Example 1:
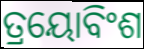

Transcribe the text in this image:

ତ୍ରୟୋବିଂଶ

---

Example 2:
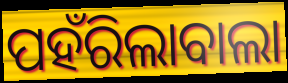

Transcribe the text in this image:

ପହଁରିଲାବାଲା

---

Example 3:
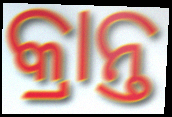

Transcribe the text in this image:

କ୍ରାନ୍ତ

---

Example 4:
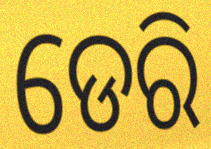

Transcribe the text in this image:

ଡେରି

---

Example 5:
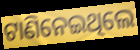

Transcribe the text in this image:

ଟାଣିନେଇଥିଲେ